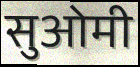
सुओमी